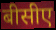
बीसीए